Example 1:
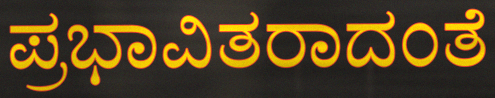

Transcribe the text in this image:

ಪ್ರಭಾವಿತರಾದಂತೆ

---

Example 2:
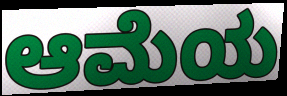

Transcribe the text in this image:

ಆಮೆಯ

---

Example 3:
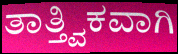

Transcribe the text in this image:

ತಾತ್ತ್ವಿಕವಾಗಿ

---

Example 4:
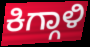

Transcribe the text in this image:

ಕಿಗ್ಗಾಳಿ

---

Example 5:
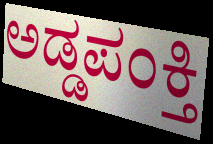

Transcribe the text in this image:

ಅಡ್ಡಪಂಕ್ತಿ